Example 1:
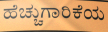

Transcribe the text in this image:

ಹೆಚ್ಚುಗಾರಿಕೆಯ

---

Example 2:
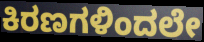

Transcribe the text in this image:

ಕಿರಣಗಳಿಂದಲೇ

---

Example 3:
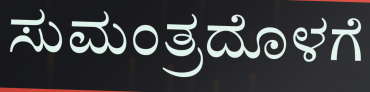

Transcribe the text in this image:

ಸುಮಂತ್ರದೊಳಗೆ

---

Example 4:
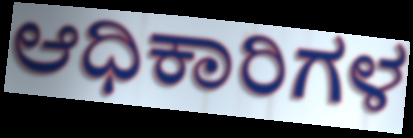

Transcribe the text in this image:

ಆಧಿಕಾರಿಗಳ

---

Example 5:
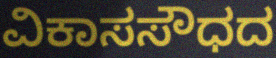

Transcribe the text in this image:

ವಿಕಾಸಸೌಧದ